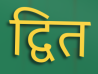
द्वित